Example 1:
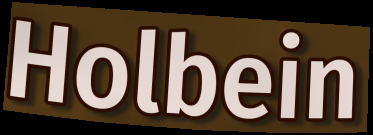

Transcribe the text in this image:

Holbein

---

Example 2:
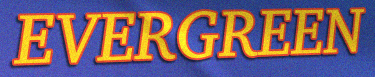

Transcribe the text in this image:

EVERGREEN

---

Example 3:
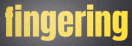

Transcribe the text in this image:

fingering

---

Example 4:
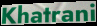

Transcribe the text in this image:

Khatrani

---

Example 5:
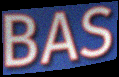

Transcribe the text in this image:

BAS